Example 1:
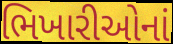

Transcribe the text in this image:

ભિખારીઓનાં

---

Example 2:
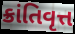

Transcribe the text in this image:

ક્રાંતિવૃત્ત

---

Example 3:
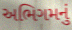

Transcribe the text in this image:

અભિગમનું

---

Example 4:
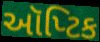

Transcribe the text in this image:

ઑપ્ટિક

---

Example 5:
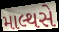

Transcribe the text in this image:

માલ્થસે